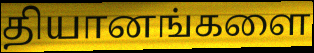
தியானங்களை